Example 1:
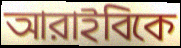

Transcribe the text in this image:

আরাইবিকে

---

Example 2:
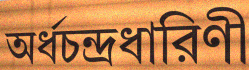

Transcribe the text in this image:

অর্ধচন্দ্রধারিণী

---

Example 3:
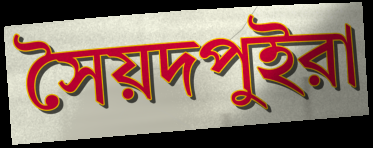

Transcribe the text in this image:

সৈয়দপুইরা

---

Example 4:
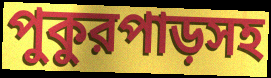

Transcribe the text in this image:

পুকুরপাড়সহ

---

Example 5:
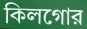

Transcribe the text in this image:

কিলগোর